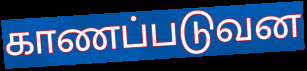
காணப்படுவன